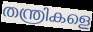
തന്ത്രികളെ